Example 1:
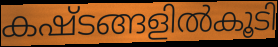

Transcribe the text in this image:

കഷ്ടങ്ങളിൽകൂടി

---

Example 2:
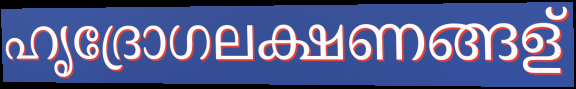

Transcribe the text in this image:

ഹൃദ്രോഗലക്ഷണങ്ങള്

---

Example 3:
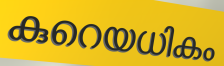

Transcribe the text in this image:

കുറെയധികം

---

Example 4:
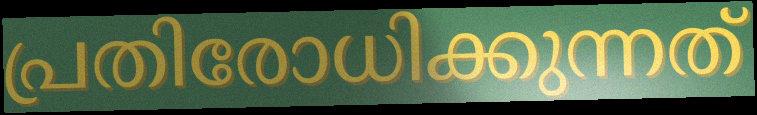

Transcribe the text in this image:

പ്രതിരോധിക്കുന്നത്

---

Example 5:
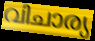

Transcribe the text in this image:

വിചാര്യ